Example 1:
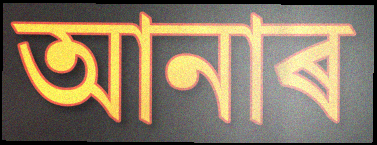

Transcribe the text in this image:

আনাৰ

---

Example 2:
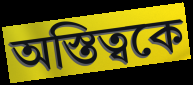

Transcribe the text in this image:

অস্তিত্বকে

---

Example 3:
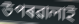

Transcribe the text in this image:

উপৰৱালাই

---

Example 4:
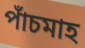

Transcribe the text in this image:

পাঁচমাহ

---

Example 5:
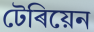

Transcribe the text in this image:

টেৰিয়েন